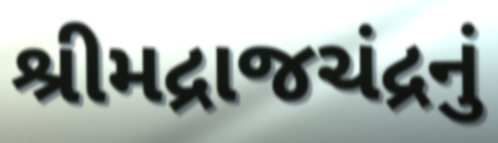
શ્રીમદ્રાજચંદ્રનું